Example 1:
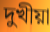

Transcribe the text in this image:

দুখীয়া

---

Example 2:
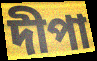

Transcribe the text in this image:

দীপা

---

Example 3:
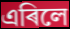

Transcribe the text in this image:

এৰিলে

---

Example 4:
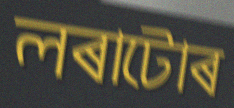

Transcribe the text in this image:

লৰাটোৰ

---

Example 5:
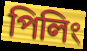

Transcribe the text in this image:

পিলিং